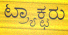
ಟ್ರ್ಯಾಕ್ಟರು